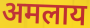
अमलाय